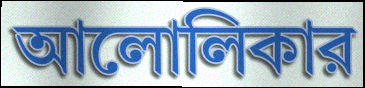
আলোলিকার